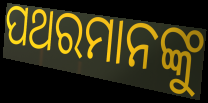
ପଥରମାନଙ୍କୁ